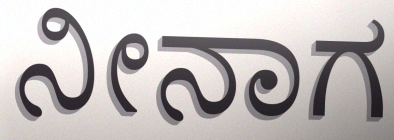
ನೀನಾಗ